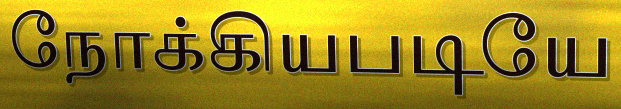
நோக்கியபடியே